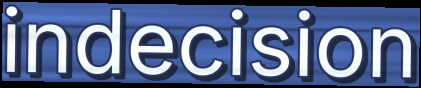
indecision